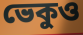
ভেকুও